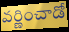
వర్ణించాడో